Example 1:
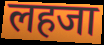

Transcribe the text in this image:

लहजा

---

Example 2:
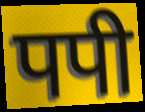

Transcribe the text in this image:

पपी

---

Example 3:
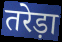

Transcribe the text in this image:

तरेड़ा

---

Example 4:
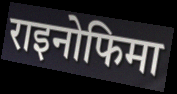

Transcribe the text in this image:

राइनोफिमा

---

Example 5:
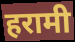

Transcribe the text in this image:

हरामी